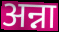
अन्ना